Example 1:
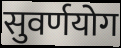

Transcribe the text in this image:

सुवर्णयोग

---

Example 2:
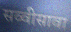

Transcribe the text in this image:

सव्वीसावा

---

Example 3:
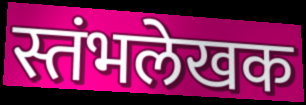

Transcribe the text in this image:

स्तंभलेखक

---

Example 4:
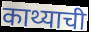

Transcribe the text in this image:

काथ्याची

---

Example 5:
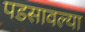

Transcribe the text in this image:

पडसावल्या